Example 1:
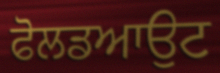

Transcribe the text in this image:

ਫੋਲਡਆਉਟ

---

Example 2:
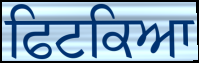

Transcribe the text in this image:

ਫਿਟਕਿਆ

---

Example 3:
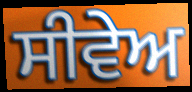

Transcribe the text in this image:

ਸੀਵੇਅ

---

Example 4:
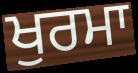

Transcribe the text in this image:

ਖੁਰਮਾ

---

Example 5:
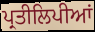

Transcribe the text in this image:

ਪ੍ਰਤੀਲਿਪੀਆਂ